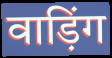
वाड़िंग